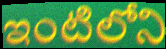
ఇంటిలోని